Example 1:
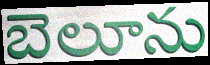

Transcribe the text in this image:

బెలూను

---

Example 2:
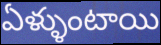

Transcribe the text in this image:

ఏళ్ళుంటాయి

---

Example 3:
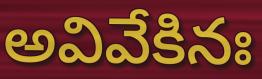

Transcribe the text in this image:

అవివేకినః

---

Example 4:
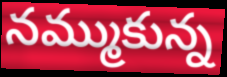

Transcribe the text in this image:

నమ్ముకున్న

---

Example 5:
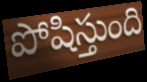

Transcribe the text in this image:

పోషిస్తుంది